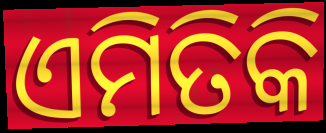
ଏମିତିକି